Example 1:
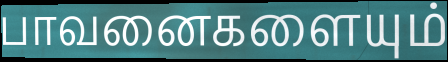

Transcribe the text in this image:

பாவனைகளையும்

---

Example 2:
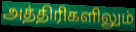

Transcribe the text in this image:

அத்திரிகளிலும்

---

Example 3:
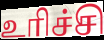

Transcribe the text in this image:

உரிச்சி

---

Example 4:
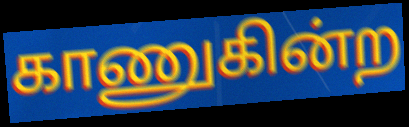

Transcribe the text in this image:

காணுகின்ற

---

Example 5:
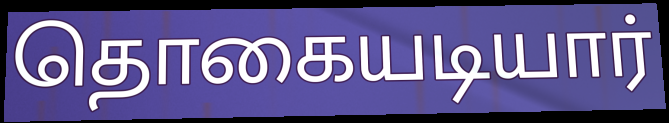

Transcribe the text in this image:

தொகையடியார்